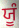
ਯੂੰ